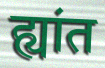
ह्यांत